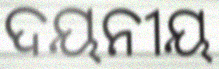
ଦୟନୀୟ